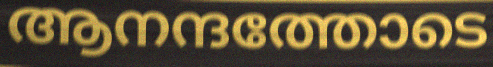
ആനന്ദത്തോടെ